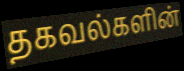
தகவல்களின்